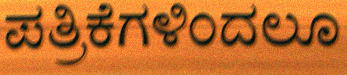
ಪತ್ರಿಕೆಗಳಿಂದಲೂ